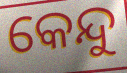
କେନ୍ଦୁ